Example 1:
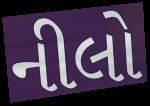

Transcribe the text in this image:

નીલો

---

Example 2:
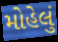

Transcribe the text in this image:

મોહેલું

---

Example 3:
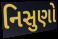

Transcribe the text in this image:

નિસુણો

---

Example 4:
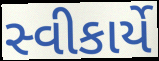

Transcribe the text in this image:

સ્વીકાર્યે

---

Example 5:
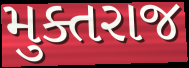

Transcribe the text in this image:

મુક્તરાજ